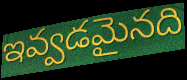
ఇవ్వడమైనది